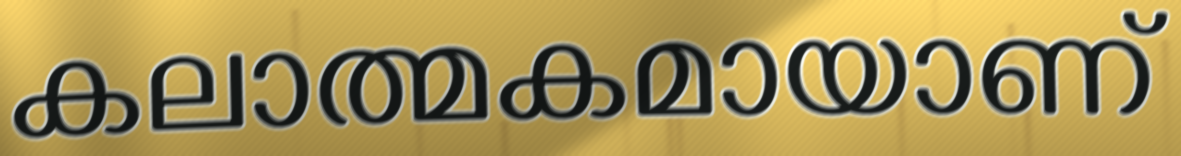
കലാത്മകമായാണ്